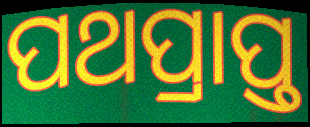
ପଥପ୍ରାପ୍ତ